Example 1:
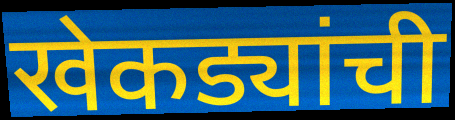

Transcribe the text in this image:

खेकड्यांची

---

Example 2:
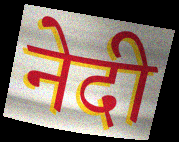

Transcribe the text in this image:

नेदी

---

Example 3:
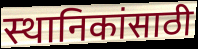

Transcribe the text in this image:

स्थानिकांसाठी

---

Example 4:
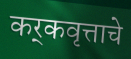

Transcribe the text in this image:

कर्कवृत्ताचे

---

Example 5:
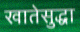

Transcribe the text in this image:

खातेसुद्धा